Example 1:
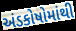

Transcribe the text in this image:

અંડકોષોમાંથી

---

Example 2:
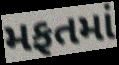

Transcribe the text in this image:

મફતમાં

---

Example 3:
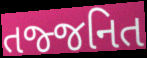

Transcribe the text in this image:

તજ્જનિત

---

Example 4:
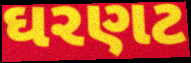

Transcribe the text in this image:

ઘરણટ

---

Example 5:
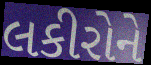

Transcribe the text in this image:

લકીરોને